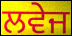
ਲਵੇਜ